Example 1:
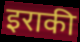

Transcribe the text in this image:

इराकी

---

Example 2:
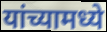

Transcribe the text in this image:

यांच्यामध्ये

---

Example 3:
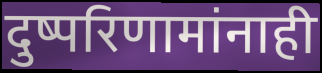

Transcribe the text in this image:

दुष्परिणामांनाही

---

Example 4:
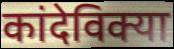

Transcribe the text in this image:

कांदेविक्या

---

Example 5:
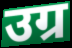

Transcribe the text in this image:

उग्र